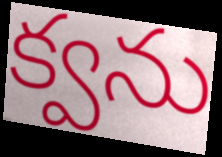
క్వను